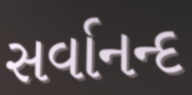
સર્વાનન્દ